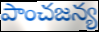
పాంచజన్య